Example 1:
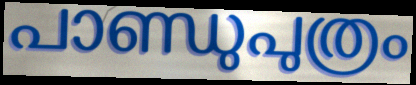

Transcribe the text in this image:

പാണ്ഡുപുത്രം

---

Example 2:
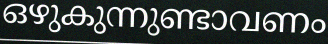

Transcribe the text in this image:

ഒഴുകുന്നുണ്ടാവണം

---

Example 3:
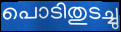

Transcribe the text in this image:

പൊടിതുടച്ചു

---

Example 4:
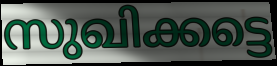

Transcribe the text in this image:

സുഖിക്കട്ടെ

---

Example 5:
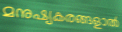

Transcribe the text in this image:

മനുഷ്യകരങ്ങളാൽ